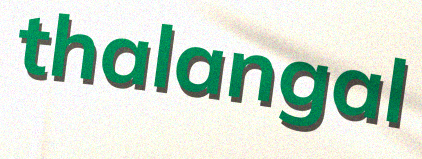
thalangal